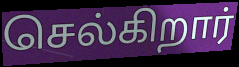
செல்கிறார்